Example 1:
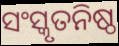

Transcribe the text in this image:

ସଂସ୍କୃତନିଷ୍ଠ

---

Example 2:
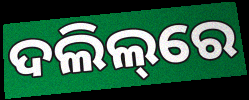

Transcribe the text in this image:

ଦଲିଲ୍‌ରେ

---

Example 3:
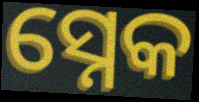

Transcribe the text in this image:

ସ୍ନେକ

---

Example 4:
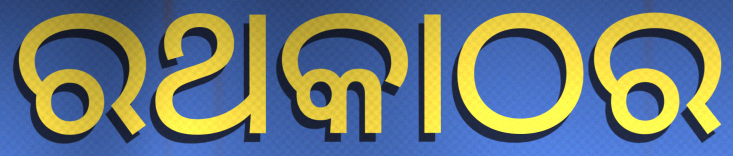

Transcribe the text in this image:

ରଥକାଠର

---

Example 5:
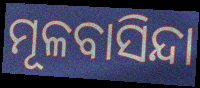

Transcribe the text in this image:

ମୂଳବାସିନ୍ଦା